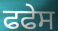
ਫਫੇਸ